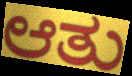
ಆತು